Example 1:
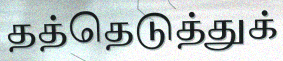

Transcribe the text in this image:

தத்தெடுத்துக்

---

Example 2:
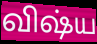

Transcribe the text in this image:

விஷ்ய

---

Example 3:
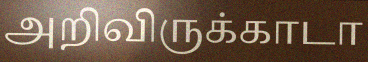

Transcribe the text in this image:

அறிவிருக்காடா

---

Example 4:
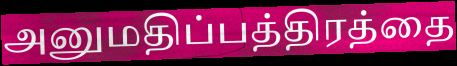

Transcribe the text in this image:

அனுமதிப்பத்திரத்தை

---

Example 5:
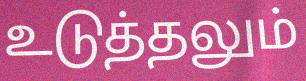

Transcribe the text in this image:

உடுத்தலும்